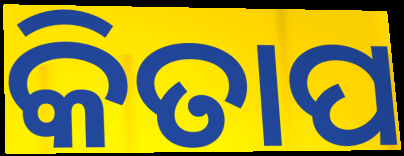
କିତାପ